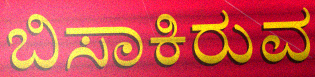
ಬಿಸಾಕಿರುವ